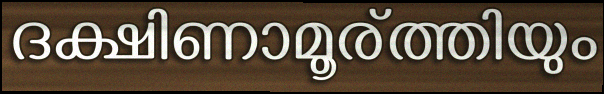
ദക്ഷിണാമൂര്ത്തിയും